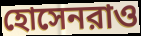
হোসেনরাও